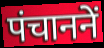
पंचाननें